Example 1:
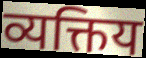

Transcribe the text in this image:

व्यक्तिय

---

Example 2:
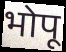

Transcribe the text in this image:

भोपू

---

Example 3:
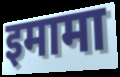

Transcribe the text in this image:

इमामा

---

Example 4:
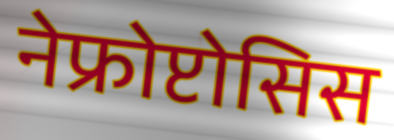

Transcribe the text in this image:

नेफ्रोप्टोसिस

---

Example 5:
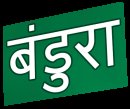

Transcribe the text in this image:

बंडुरा